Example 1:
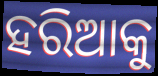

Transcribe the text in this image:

ହରିଆକୁ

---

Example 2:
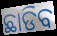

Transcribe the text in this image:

ଛାଡିବ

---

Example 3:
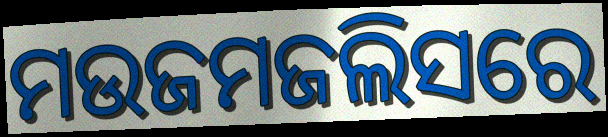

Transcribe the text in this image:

ମଉଜମଜଲିସରେ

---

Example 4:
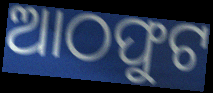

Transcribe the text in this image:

ଆଠଫୁଟ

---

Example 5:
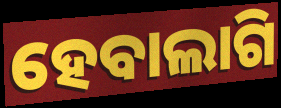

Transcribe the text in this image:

ହେବାଲାଗି